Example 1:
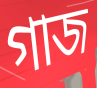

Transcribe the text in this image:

গাজ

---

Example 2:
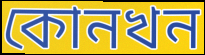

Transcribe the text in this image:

কোনখন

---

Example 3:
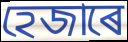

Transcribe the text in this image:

হেজাৰে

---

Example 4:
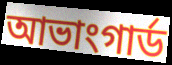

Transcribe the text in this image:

আভাংগাৰ্ড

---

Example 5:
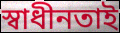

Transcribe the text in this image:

স্বাধীনতাই